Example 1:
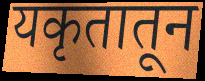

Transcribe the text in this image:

यकृतातून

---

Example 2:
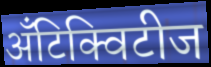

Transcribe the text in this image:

अँटिक्विटीज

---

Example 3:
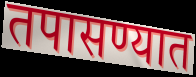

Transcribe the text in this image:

तपासण्यात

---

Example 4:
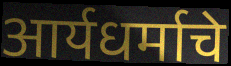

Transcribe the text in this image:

आर्यधर्माचे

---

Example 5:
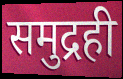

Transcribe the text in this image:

समुद्रही